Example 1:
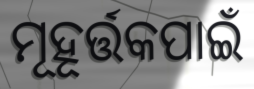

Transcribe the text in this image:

ମୂହୂର୍ତ୍ତକପାଇଁ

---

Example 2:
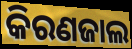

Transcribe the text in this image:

କିରଣଜାଲ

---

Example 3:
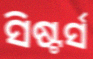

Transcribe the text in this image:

ସିଷ୍ଟର୍ସ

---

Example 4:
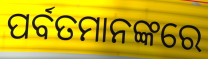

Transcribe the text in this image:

ପର୍ବତମାନଙ୍କରେ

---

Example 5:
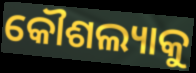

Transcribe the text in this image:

କୌଶଲ୍ୟାକୁ